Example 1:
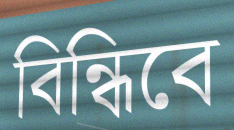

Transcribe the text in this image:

বিন্ধিবে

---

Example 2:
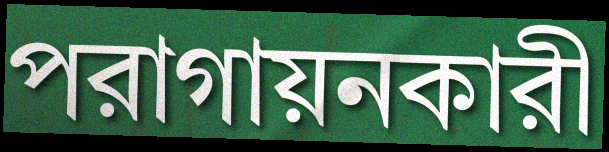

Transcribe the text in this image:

পরাগায়নকারী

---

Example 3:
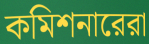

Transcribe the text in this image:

কমিশনারেরা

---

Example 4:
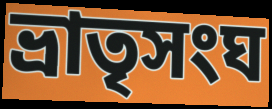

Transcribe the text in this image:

ভ্রাতৃসংঘ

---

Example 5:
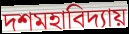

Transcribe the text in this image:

দশমহাবিদ্যায়